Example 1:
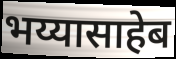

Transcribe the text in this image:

भय्यासाहेब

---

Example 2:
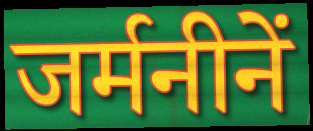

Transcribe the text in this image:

जर्मनीनें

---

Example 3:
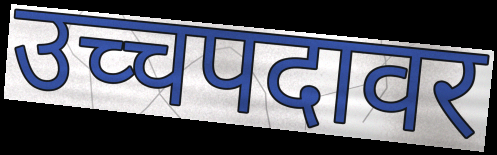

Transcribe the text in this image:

उच्चपदावर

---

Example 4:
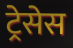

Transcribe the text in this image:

ट्रेसेस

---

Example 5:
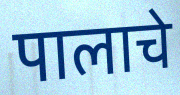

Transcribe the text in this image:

पालाचे